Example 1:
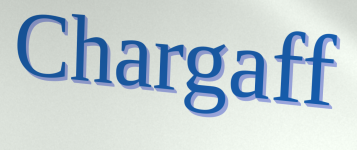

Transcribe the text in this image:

Chargaff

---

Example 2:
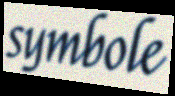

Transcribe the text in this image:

symbole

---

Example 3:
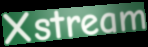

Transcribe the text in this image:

Xstream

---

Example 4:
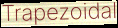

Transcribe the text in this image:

Trapezoidal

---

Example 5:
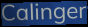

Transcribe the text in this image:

Calinger